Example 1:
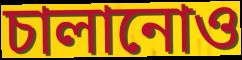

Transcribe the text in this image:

চালানোও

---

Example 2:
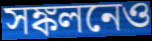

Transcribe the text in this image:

সঙ্কলনেও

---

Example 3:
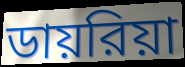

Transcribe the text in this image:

ডায়রিয়া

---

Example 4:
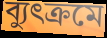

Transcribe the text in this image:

ব্যুৎক্রমে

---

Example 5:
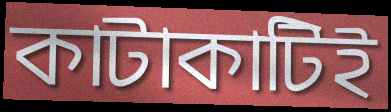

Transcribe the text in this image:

কাটাকাটিই